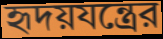
হৃদয়যন্ত্রের